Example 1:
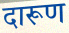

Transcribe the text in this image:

दारूण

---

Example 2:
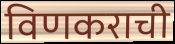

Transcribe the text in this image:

विणकराची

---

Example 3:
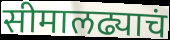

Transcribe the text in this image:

सीमालढ्याचं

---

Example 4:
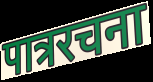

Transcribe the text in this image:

पात्ररचना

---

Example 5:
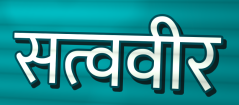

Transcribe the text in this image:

सत्ववीर